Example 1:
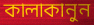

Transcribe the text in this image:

কালাকানুন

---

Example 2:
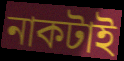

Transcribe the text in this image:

নাকটাই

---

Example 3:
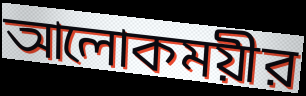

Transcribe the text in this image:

আলোকময়ীর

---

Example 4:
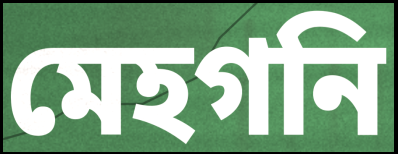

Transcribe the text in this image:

মেহগনি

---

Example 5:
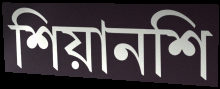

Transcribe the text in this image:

শিয়ানশি